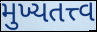
મુખ્યતત્ત્વ